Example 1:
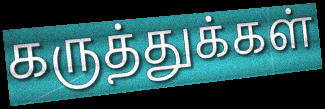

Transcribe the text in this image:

கருத்துக்கள்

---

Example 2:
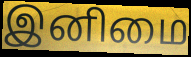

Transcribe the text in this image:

இனிமை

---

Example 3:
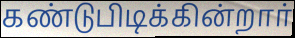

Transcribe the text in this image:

கண்டுபிடிக்கின்றார்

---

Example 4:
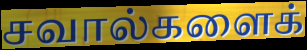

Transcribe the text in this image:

சவால்களைக்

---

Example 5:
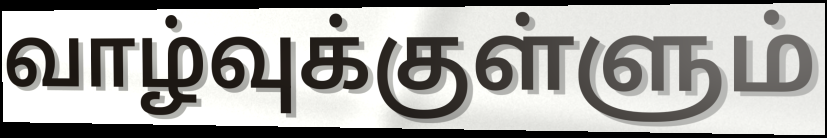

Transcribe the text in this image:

வாழ்வுக்குள்ளும்